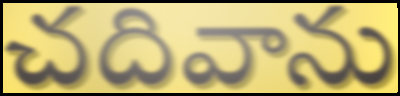
చదివాను